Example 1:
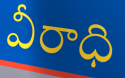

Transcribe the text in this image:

వీరాధి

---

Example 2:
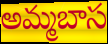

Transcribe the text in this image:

అమ్మబాస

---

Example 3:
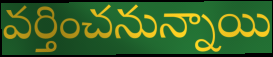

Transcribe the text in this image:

వర్తించనున్నాయి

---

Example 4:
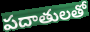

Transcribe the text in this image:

పదాతులతో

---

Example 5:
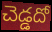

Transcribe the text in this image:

చెడ్డదో